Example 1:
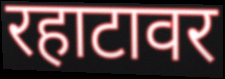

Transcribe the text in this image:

रहाटावर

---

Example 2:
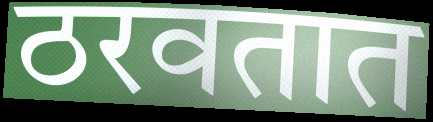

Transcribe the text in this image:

ठरवतात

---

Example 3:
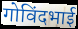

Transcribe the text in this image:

गोविंदभाई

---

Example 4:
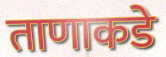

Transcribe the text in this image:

ताणाकडे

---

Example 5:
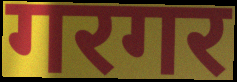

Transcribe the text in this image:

गरगर